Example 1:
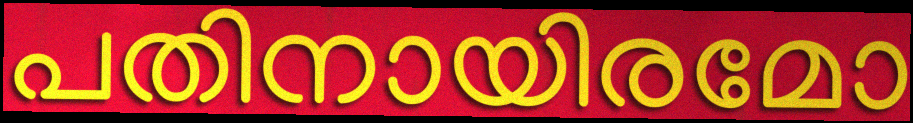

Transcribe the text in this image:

പതിനായിരമോ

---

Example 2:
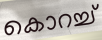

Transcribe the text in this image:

കൊറച്ച്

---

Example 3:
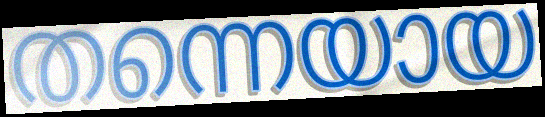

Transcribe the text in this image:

തന്നെയായ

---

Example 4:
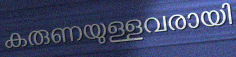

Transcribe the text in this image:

കരുണയുള്ളവരായി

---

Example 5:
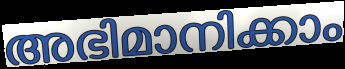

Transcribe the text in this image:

അഭിമാനിക്കാം